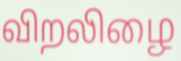
விறலிழை